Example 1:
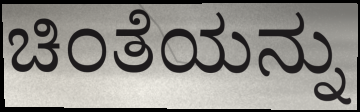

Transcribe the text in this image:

ಚಿಂತೆಯನ್ನು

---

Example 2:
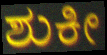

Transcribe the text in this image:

ಶುಕೀ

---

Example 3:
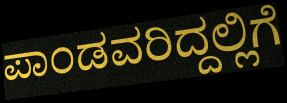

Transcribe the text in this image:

ಪಾಂಡವರಿದ್ದಲ್ಲಿಗೆ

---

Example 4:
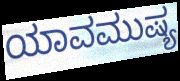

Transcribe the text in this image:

ಯಾವಮುಷ್ಯ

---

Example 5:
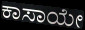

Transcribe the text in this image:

ಕಾಸಾಯೇ